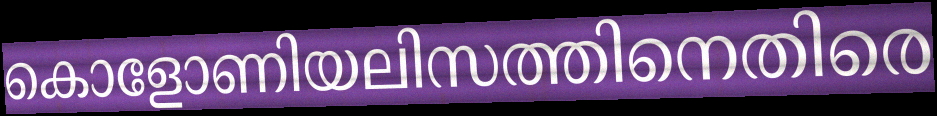
കൊളോണിയലിസത്തിനെതിരെ